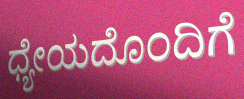
ಧ್ಯೇಯದೊಂದಿಗೆ